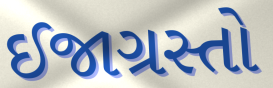
ઈજાગ્રસ્તો